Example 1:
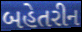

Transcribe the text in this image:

બહેતરીન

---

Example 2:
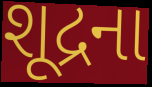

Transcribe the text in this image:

શૂદ્રના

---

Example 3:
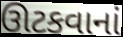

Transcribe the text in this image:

ઊટકવાનાં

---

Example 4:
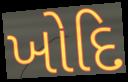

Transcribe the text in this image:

ખોદિ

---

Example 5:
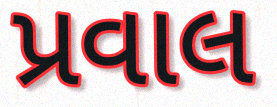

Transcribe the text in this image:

પ્રવાલ